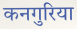
कनगुरिया